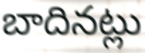
బాదినట్లు